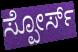
ಸ್ಪೋರ್ಸ್